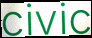
civic